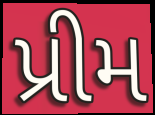
પ્રીમ